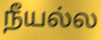
நீயல்ல